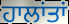
ਹਾਲਾਂਤਾਂ